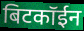
बिटकॉईन